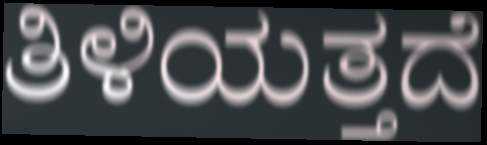
ತಿಳಿಯತ್ತದೆ